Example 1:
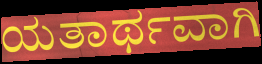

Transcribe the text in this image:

ಯತಾರ್ಥವಾಗಿ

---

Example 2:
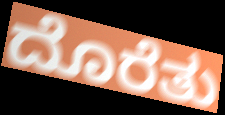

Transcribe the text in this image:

ದೊರೆತು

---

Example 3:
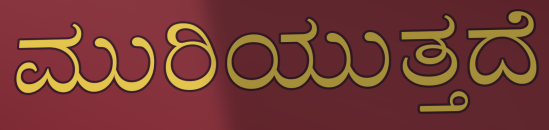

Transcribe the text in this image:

ಮುರಿಯುತ್ತದೆ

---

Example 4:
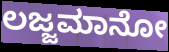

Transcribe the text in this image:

ಲಜ್ಜಮಾನೋ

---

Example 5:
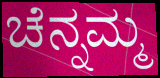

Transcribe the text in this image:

ಚೆನ್ನಮ್ಮ